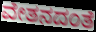
ವೇತನದಂತೆ